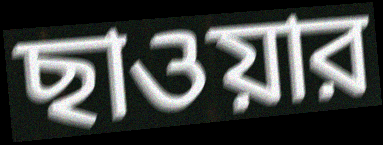
ছাওয়ার